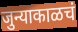
जुन्याकाळचं